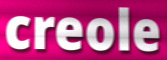
creole